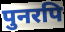
पुनरपि